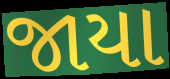
જાયા